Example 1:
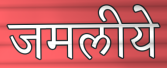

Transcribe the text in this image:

जमलीये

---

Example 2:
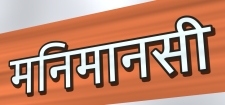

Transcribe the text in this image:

मनिमानसी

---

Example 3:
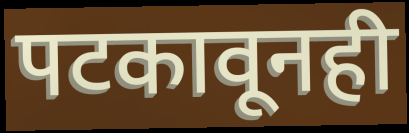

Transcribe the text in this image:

पटकावूनही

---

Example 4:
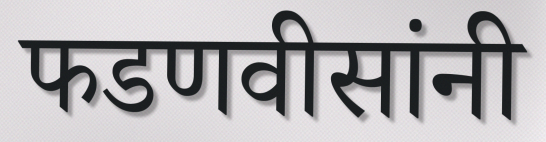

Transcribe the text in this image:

फडणवीसांनी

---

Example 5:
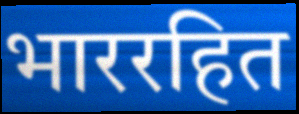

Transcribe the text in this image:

भाररहित